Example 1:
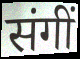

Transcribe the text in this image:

संगीं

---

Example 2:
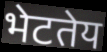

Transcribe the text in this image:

भेटतेय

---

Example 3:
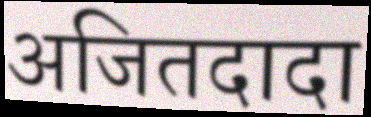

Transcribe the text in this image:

अजितदादा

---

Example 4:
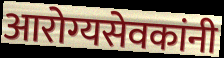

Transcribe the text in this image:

आरोग्यसेवकांनी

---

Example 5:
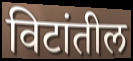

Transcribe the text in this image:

विटांतील